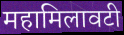
महामिलावटी